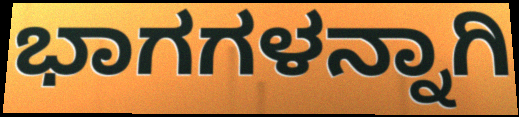
ಭಾಗಗಳನ್ನಾಗಿ